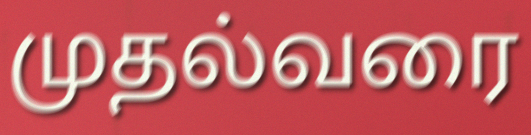
முதல்வரை